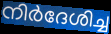
നിർദേശിച്ച